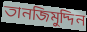
তানজিমুদ্দিন